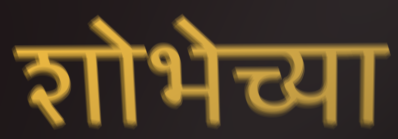
शोभेच्या